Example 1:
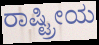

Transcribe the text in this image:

ರಾಷ್ಟ್ರೀಯ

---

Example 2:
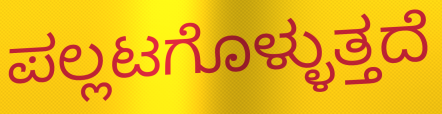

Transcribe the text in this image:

ಪಲ್ಲಟಗೊಳ್ಳುತ್ತದೆ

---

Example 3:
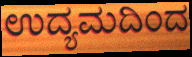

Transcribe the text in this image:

ಉದ್ಯಮದಿಂದ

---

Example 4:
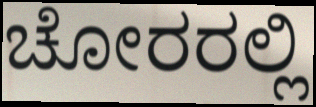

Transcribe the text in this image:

ಚೋರರಲ್ಲಿ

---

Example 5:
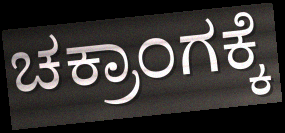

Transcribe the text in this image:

ಚಕ್ರಾಂಗಕ್ಕೆ